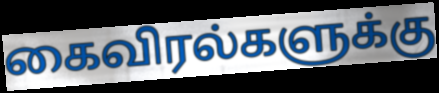
கைவிரல்களுக்கு